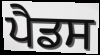
ਪੈਡਸ